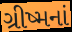
ગ્રીષ્મનાં